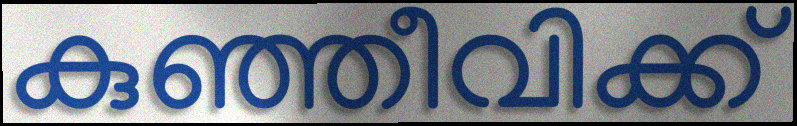
കുഞ്ഞീവിക്ക്